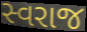
સ્વરાજ